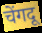
चेंगदू